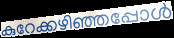
കുറേക്കഴിഞ്ഞപ്പോൾ